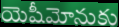
యెషీమోనుకు